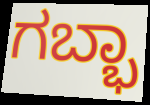
ಗಬ್ಭಾ